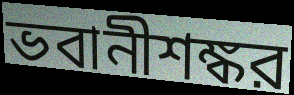
ভবানীশঙ্কর